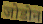
जोडोन